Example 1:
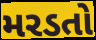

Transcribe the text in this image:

મરડતો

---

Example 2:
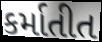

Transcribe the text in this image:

કર્માતીત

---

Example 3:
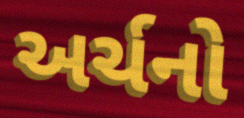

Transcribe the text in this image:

અર્ચનો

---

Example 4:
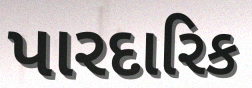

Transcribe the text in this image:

પારદારિક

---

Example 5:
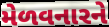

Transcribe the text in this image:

મેળવનારને